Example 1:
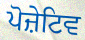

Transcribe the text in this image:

ਪੋਜ਼ੇਟਿਵ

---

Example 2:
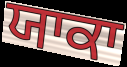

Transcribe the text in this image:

ਯਾਕਾ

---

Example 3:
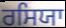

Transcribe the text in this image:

ਰਸਿਯਾ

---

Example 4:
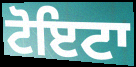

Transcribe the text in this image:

ਟੋਇਟਾ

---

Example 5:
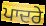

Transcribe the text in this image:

ਪਾਦਰੇ